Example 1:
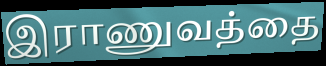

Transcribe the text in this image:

இராணுவத்தை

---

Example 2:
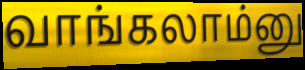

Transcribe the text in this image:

வாங்கலாம்னு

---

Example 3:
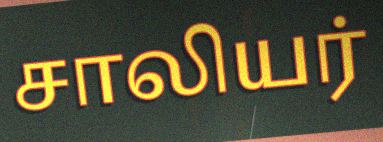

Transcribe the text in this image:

சாலியர்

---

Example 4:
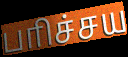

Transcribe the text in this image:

பரிச்சய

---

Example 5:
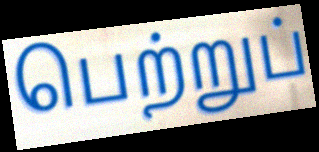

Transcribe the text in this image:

பெற்றுப்